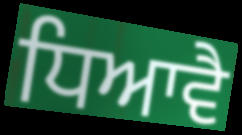
ਧਿਆਵੈ